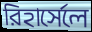
রিহার্সেলে